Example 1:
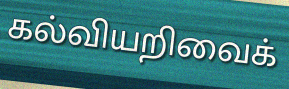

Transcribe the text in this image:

கல்வியறிவைக்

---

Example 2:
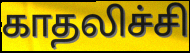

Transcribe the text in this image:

காதலிச்சி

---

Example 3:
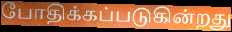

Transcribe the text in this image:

போதிக்கப்படுகின்றது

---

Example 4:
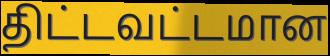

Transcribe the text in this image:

திட்டவட்டமான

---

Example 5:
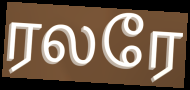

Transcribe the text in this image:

ரலரே